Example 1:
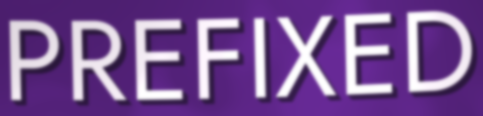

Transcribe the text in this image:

PREFIXED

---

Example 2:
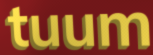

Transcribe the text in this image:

tuum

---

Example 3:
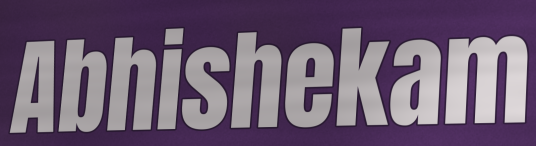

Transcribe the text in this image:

Abhishekam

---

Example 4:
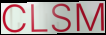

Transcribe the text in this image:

CLSM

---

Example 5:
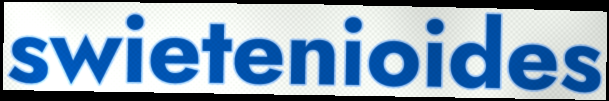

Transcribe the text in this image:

swietenioides